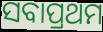
ସବାପ୍ରଥମ